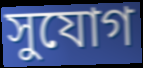
সুযোগ